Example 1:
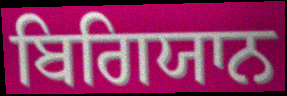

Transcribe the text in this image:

ਬਿਗਿਯਾਨ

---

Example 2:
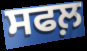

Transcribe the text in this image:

ਸਫਲ਼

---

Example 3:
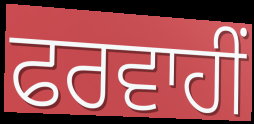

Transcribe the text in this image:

ਫਰਵਾਹੀਂ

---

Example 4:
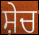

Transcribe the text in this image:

ਸ਼ੇਚ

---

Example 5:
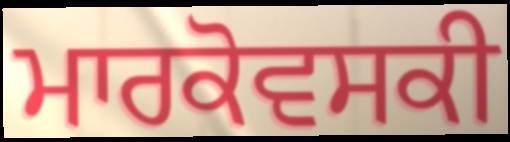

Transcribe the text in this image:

ਮਾਰਕੋਵਸਕੀ